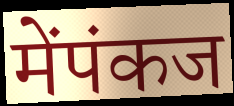
मेंपंकज